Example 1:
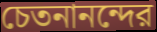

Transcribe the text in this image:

চেতনানন্দের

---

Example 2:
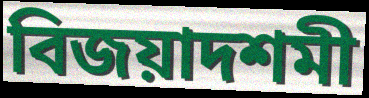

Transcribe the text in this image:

বিজয়াদশমী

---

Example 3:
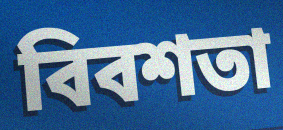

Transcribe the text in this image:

বিবশতা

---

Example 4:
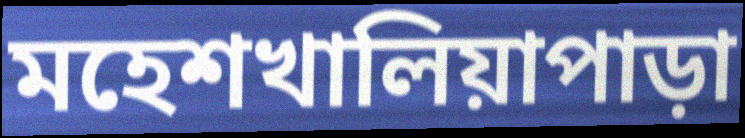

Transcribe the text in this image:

মহেশখালিয়াপাড়া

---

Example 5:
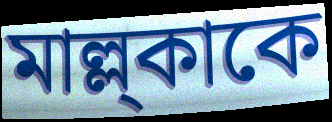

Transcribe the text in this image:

মাল্ল্কাকে